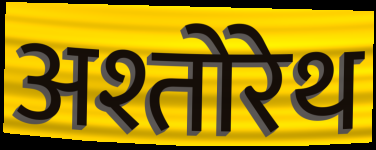
अश्तोरेथ